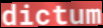
dictum